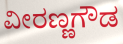
ವೀರಣ್ಣಗೌಡ